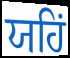
ਯਹਿਂ